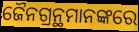
ଜୈନଗ୍ରନ୍ଥମାନଙ୍କରେ